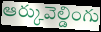
ఆర్కువెల్డింగు